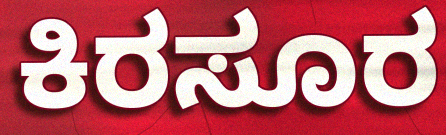
ಕಿರಸೂರ